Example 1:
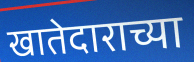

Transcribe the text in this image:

खातेदाराच्या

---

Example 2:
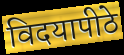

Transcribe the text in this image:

विदयापीठे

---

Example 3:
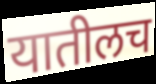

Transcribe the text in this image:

यातीलच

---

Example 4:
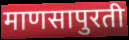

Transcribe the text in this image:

माणसापुरती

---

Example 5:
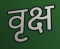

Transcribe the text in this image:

वृक्ष